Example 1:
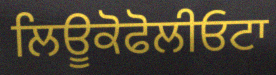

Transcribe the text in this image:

ਲਿਊਕੋਫੋਲੀਓਟਾ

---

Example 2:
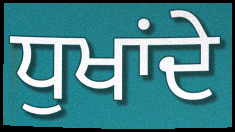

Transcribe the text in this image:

ਧੁਖਾਂਦੇ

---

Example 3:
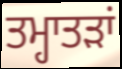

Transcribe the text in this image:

ਤਮ੍ਹਾਤੜਾਂ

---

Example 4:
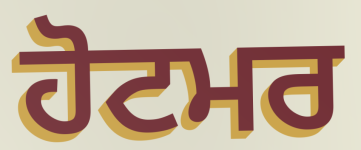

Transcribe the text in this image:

ਹੋਟਮਰ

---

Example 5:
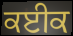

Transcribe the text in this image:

ਕਈਕ